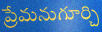
ప్రేమనుగూర్చి